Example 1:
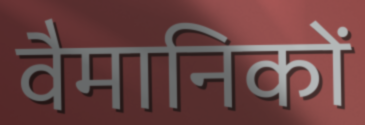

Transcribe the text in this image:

वैमानिकों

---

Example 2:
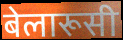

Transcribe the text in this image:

बेलारूसी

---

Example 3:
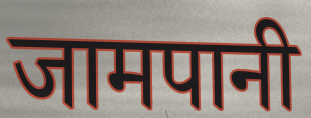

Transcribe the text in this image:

जामपानी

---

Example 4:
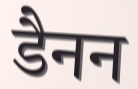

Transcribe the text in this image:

डैनन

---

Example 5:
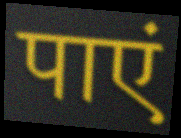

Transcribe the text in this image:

पाएं